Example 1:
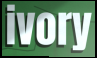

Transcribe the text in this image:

ivory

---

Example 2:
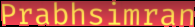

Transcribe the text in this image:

Prabhsimran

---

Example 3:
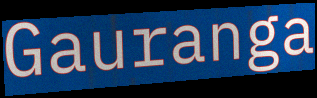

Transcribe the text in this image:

Gauranga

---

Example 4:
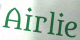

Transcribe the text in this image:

Airlie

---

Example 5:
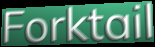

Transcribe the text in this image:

Forktail